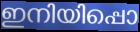
ഇനിയിപ്പൊ